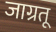
जाग्रतू